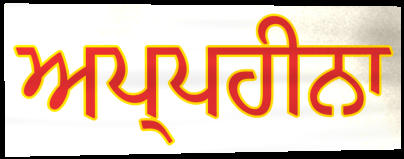
ਅਪ੍ਪਹੀਨਾ